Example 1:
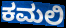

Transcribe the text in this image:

ಕಮಲಿ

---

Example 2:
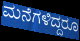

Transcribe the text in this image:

ಮನೆಗಳಿದ್ದರೂ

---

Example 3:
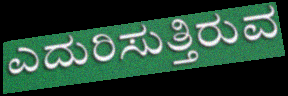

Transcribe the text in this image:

ಎದುರಿಸುತ್ತಿರುವ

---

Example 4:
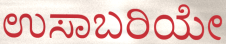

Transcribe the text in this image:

ಉಸಾಬರಿಯೇ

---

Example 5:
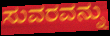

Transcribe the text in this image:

ಸುವರವನ್ನು